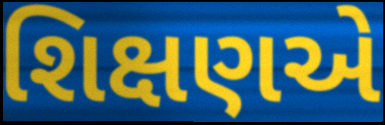
શિક્ષણએ